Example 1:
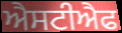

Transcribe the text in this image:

ਐਸਟੀਐਫ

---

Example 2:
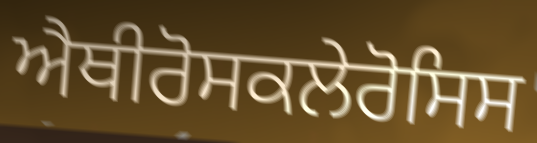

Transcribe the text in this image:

ਐਥੀਰੋਸਕਲੇਰੋਸਿਸ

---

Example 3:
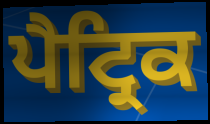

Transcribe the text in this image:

ਪੈਟ੍ਰਿਕ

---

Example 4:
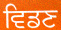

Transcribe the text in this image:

ਵਿਡਣ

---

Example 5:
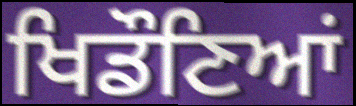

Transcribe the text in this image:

ਖਿਡੌਣਿਆਂ